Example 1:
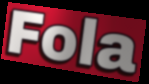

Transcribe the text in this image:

Fola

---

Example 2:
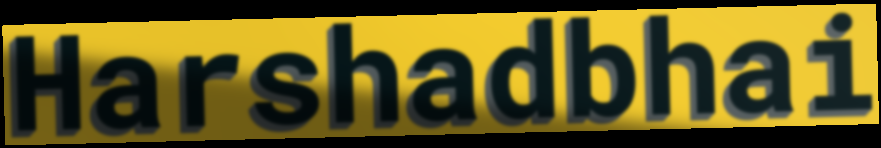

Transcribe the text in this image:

Harshadbhai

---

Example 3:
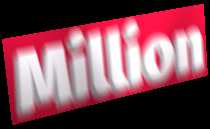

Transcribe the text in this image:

Million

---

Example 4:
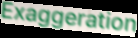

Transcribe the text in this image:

Exaggeration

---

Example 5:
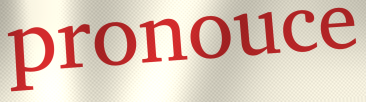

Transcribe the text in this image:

pronouce